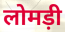
लोमड़ी